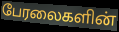
பேரலைகளின்